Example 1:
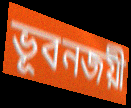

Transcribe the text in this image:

ভূবনজয়ী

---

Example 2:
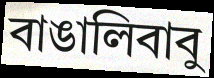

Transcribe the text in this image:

বাঙালিবাবু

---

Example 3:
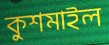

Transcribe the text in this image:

কুশমাইল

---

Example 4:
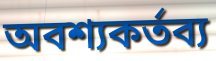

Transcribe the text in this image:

অবশ্যকর্তব্য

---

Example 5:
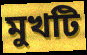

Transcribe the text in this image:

মুখটি